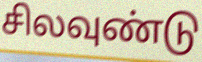
சிலவுண்டு